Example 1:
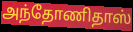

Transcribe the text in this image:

அந்தோணிதாஸ்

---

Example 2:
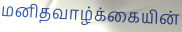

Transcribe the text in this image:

மனிதவாழ்க்கையின்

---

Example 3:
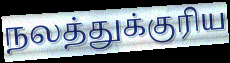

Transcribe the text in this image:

நலத்துக்குரிய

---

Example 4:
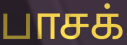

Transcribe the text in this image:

பாசக்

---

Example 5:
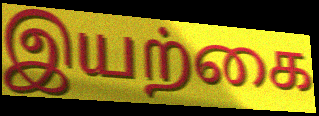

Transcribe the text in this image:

இயற்கை